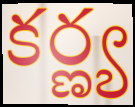
కర్ణ్య